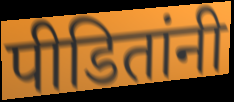
पीडितांनी